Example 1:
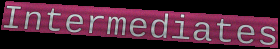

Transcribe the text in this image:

Intermediates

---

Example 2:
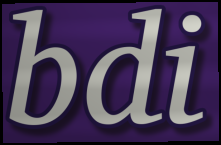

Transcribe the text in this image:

bdi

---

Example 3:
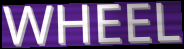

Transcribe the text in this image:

WHEEL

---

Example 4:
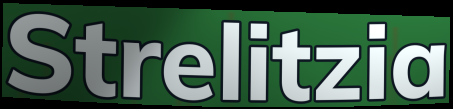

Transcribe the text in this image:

Strelitzia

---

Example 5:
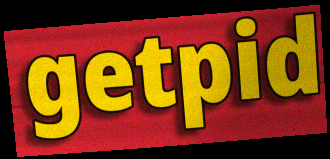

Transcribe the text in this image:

getpid